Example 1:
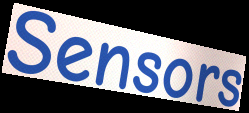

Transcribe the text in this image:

Sensors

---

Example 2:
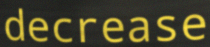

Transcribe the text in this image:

decrease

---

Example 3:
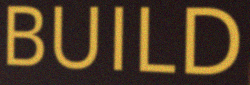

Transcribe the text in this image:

BUILD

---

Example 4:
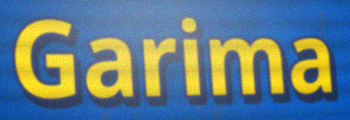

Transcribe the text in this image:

Garima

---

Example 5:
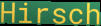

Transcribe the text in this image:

Hirsch